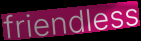
friendless